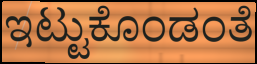
ಇಟ್ಟುಕೊಂಡಂತೆ